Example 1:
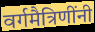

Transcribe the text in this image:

वर्गमैत्रिणींनी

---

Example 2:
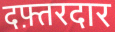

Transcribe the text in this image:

दफ़्तरदार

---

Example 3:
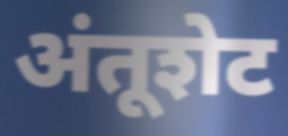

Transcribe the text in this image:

अंतूशेट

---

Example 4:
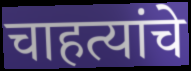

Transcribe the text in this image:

चाहत्यांचे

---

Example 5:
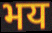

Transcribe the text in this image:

भय